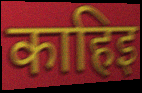
काहिइ